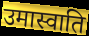
उमास्वाति